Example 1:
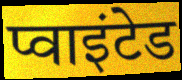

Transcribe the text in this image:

प्वाइंटेड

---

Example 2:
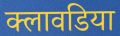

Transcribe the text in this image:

क्लावडिया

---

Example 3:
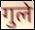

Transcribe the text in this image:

गुले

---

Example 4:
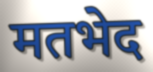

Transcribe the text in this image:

मतभेद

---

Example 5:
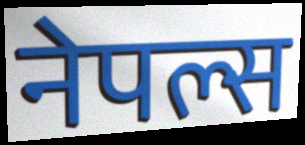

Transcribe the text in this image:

नेपल्स